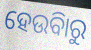
ହେଉିବାରୁ